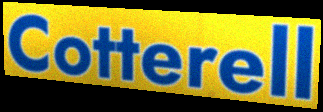
Cotterell